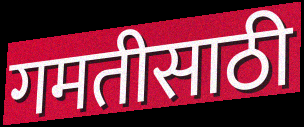
गमतीसाठी